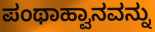
ಪಂಥಾಹ್ವಾನವನ್ನು